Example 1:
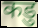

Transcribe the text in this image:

कडु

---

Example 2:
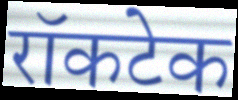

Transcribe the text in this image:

रॉकटेक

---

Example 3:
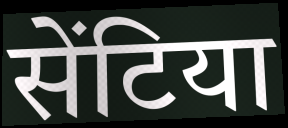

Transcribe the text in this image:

सेंटिया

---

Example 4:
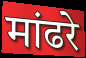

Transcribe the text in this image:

मांढरे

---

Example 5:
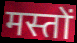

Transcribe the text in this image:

मस्तों